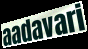
aadavari